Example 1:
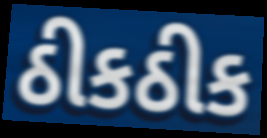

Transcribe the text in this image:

ઠીકઠીક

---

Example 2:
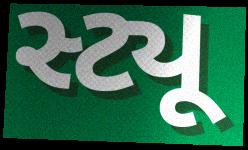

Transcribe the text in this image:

સ્ટ્યૂ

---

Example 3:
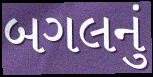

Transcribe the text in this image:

બગલનું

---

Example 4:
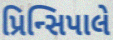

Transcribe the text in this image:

પ્રિન્સિપાલે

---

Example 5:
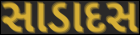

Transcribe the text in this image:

સાડાદસ